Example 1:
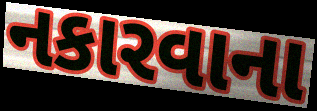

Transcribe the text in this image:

નકારવાના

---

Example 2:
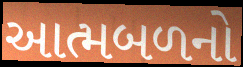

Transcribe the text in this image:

આત્મબળનો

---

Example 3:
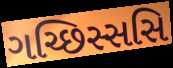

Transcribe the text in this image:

ગચ્છિસ્સસિ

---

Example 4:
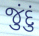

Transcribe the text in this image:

જુંદું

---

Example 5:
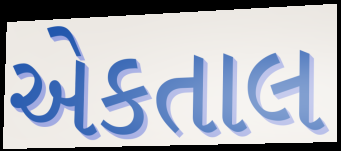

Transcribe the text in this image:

એકતાલ